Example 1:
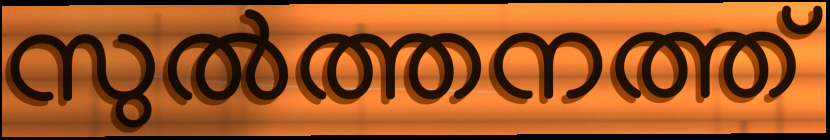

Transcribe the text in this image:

സുൽത്തനത്ത്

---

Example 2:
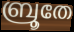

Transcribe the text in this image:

ബ്രൂതേ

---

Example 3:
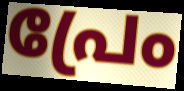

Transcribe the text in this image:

പ്രേം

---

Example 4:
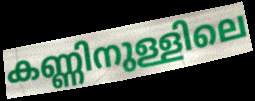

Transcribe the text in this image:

കണ്ണിനുള്ളിലെ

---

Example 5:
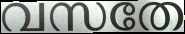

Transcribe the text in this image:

വസതേ